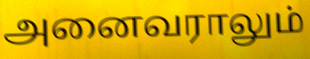
அனைவராலும்